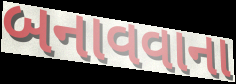
બનાવવાના